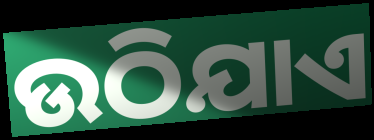
ଉଠିଯାଏ